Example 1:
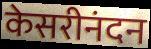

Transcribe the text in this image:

केसरीनंदन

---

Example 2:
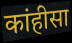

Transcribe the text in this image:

कांहीसा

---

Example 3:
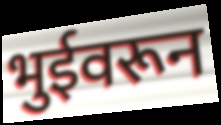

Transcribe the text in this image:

भुईवरून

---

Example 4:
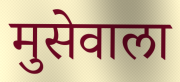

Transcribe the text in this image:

मुसेवाला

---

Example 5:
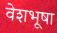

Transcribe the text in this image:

वेशभूषा